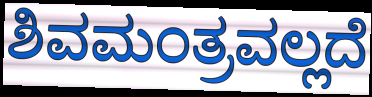
ಶಿವಮಂತ್ರವಲ್ಲದೆ